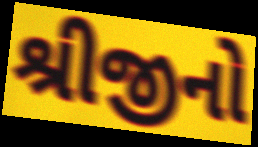
શ્રીજીનો